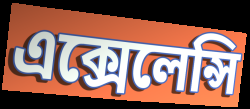
এক্সেলেন্সি